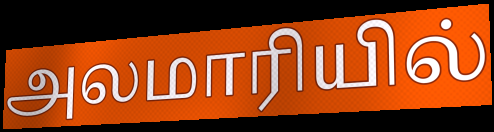
அலமாரியில்